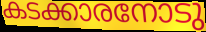
കടക്കാരനോടു